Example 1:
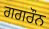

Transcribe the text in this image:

ਗਗਰੌਨ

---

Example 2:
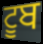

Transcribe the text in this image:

ਟੂਬ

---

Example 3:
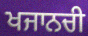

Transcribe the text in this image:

ਖਜਾਨਚੀ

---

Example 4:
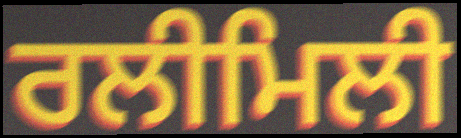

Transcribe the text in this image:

ਰਲੀਮਿਲੀ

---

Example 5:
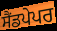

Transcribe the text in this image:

ਸੈਂਡਪੇਪਰ